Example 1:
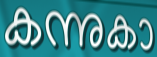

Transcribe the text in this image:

കന്നുകാ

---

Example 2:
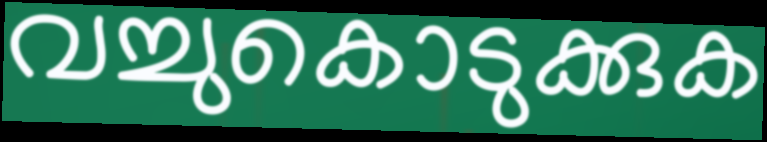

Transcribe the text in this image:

വച്ചുകൊടുക്കുക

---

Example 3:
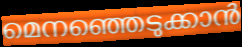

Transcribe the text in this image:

മെനഞ്ഞെടുക്കാൻ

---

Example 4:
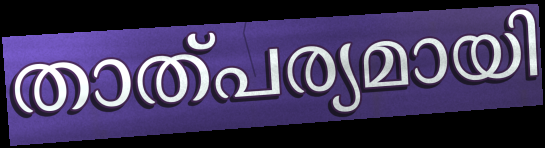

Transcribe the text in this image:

താത്പര്യമായി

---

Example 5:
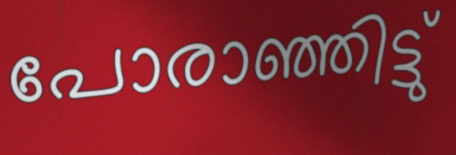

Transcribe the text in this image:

പോരാഞ്ഞിട്ടു്